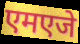
एमएजे